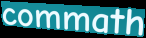
commath